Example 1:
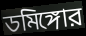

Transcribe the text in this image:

ডমিঙ্গোর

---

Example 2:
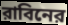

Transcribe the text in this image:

রাবিনের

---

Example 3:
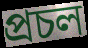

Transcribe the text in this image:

প্রচল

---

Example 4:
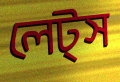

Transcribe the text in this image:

লেট্‌স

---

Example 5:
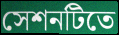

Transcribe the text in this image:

সেশনটিতে